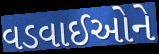
વડવાઈઓને